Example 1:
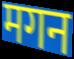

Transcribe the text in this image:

मगन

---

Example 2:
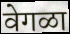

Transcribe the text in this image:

वेगळा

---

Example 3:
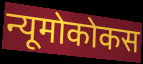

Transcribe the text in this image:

न्यूमोकोकस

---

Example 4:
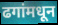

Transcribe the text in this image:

ढगांमधून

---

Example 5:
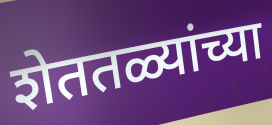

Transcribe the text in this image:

शेततळ्यांच्या